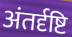
अंतर्दृष्टि